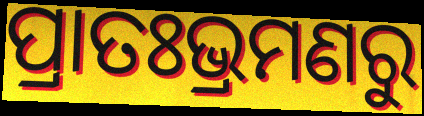
ପ୍ରାତଃଭ୍ରମଣରୁ